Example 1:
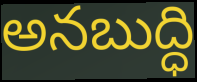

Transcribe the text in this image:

అనబుద్ధి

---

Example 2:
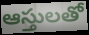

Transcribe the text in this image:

ఆస్తులతో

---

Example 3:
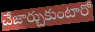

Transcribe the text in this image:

చేజార్చుకుంటారో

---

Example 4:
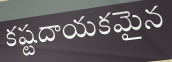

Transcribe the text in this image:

కష్టదాయకమైన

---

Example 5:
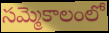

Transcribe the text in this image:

సమ్మెకాలంలో